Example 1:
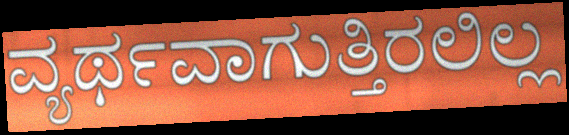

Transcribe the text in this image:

ವ್ಯರ್ಥವಾಗುತ್ತಿರಲಿಲ್ಲ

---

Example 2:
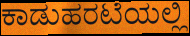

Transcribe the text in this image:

ಕಾಡುಹರಟೆಯಲ್ಲಿ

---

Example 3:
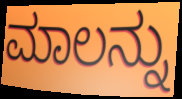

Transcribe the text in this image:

ಮಾಲನ್ನು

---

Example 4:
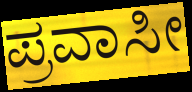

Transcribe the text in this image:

ಪ್ರವಾಸೀ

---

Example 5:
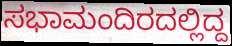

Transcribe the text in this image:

ಸಭಾಮಂದಿರದಲ್ಲಿದ್ದ